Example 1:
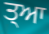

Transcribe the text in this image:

ਤ੍ਆ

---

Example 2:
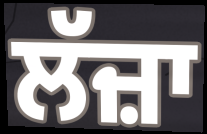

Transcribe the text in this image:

ਲੱਜ਼ਾ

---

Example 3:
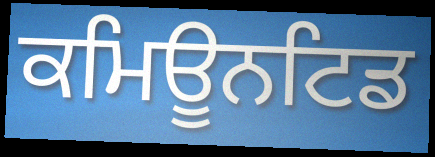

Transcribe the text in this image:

ਕਮਿਊਨਟਿਡ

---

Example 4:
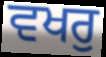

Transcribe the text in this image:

ਵਖਰੁ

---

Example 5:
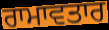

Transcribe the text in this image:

ਰਾਮਾਵਤਾਰ